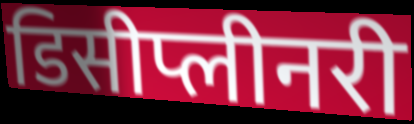
डिसीप्लीनरी